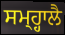
ਸਮ੍ਹ੍ਹਾਲੈ